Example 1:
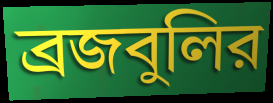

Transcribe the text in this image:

ব্রজবুলির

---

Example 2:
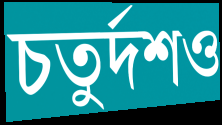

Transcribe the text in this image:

চতুর্দশও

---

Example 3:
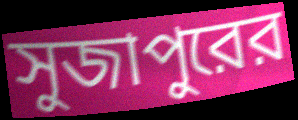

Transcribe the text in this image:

সুজাপুরের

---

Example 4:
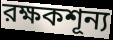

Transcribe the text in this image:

রক্ষকশূন্য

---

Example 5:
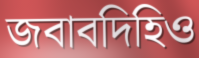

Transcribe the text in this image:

জবাবদিহিও